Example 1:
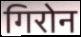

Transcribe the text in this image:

गिरोन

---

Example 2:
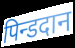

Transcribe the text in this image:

पिन्डदान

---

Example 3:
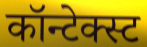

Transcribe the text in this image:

कॉन्टेक्स्ट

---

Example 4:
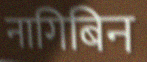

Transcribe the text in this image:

नागिबिन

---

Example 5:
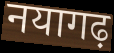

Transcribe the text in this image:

नयागढ़